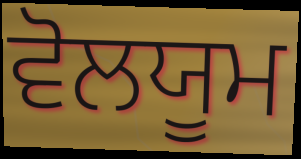
ਵੋਲਯੂਮ